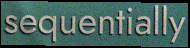
sequentially